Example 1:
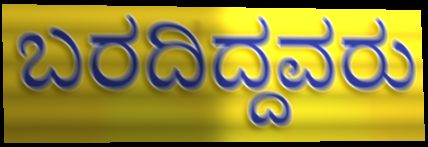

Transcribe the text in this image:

ಬರದಿದ್ದವರು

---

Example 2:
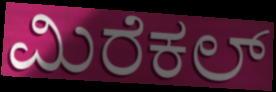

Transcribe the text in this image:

ಮಿರೆಕಲ್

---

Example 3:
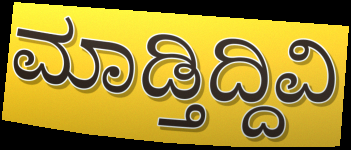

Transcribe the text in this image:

ಮಾಡ್ತಿದ್ದಿವಿ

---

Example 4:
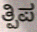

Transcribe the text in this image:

ತ್ಪಿಪ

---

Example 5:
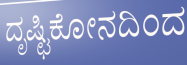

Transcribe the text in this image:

ದೃಷ್ಟಿಕೋನದಿಂದ